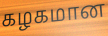
கழகமான